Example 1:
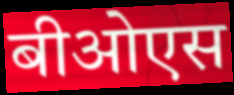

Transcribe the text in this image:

बीओएस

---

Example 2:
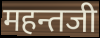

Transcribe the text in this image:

महन्तजी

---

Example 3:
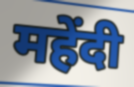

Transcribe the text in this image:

महेंदी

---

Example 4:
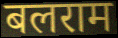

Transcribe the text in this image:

बलराम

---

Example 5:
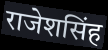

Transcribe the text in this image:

राजेशसिंह